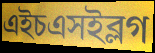
এইচএসইব্লগ